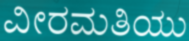
ವೀರಮತಿಯು